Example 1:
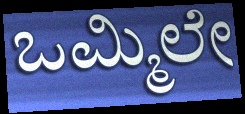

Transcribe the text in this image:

ಒಮ್ಮಿಲೇ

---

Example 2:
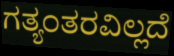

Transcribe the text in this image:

ಗತ್ಯಂತರವಿಲ್ಲದೆ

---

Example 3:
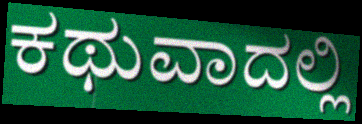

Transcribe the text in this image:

ಕಥುವಾದಲ್ಲಿ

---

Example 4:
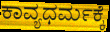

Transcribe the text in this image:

ಕಾವ್ಯಧರ್ಮಕ್ಕೆ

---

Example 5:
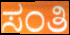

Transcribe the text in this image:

ಸಂತಿ